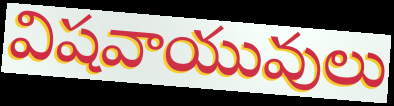
విషవాయువులు